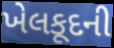
ખેલકૂદની